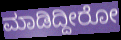
ಮಾಡಿದ್ದೀರೋ